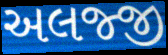
અલજ્જી